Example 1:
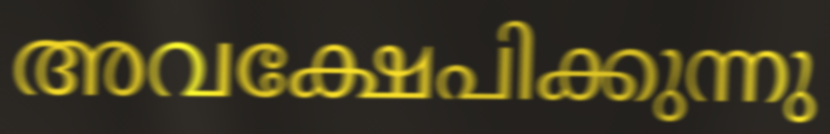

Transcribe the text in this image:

അവക്ഷേപിക്കുന്നു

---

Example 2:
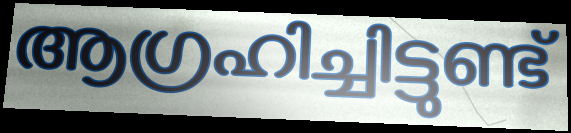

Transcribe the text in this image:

ആഗ്രഹിച്ചിട്ടുണ്ട്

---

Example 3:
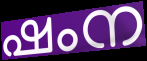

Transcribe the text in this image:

ഷംന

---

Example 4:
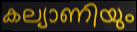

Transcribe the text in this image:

കല്യാണിയും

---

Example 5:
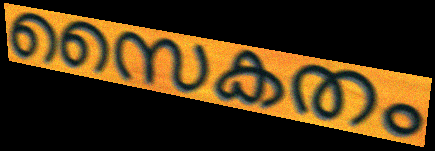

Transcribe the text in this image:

സൈകതം